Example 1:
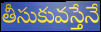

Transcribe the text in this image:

తీసుకువస్తేనే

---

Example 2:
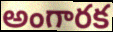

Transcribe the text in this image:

అంగారక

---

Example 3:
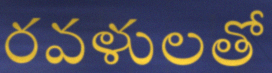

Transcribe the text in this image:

రవళులతో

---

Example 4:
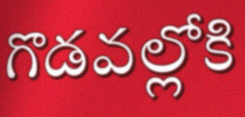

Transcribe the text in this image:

గొడవల్లోకి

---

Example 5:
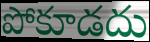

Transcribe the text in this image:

పోకూడదు